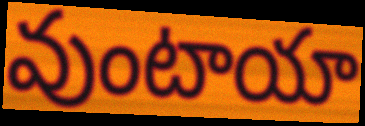
వుంటాయా